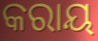
କରାୟ